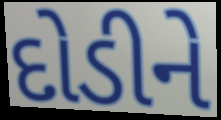
દોડીને